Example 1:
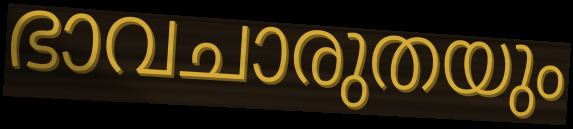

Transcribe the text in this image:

ഭാവചാരുതയും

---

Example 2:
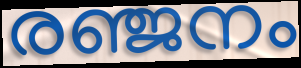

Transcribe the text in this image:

രഞ്ജനം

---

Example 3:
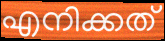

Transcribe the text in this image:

എനിക്കത്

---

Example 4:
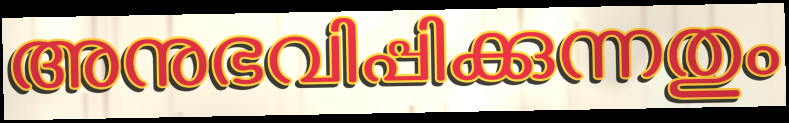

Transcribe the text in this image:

അനുഭവിപ്പിക്കുന്നതും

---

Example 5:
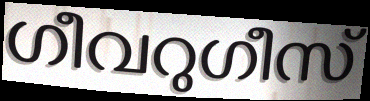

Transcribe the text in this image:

ഗീവറുഗീസ്